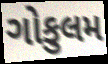
ગોકુલમ